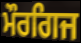
ਮੌਰਗਿਜ